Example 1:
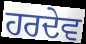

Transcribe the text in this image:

ਹਰਦੇਵ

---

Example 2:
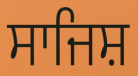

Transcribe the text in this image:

ਸਾਜਿਸ਼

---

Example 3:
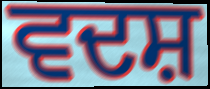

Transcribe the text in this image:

ਵਦਸ਼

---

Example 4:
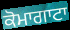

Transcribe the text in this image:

ਕੋਮਾਗਾਟਾ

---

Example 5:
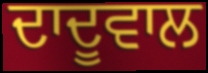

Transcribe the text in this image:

ਦਾਦੂਵਾਲ